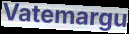
Vatemargu